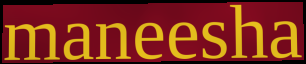
maneesha